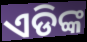
ଏଡିଙ୍କ